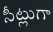
సీట్లుగా